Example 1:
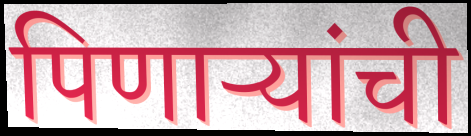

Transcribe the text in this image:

पिणाऱ्यांची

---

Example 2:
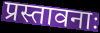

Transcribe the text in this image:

प्रस्तावनाः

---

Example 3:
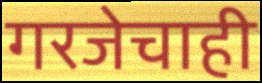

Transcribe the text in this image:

गरजेचाही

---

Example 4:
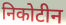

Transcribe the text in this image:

निकोटीन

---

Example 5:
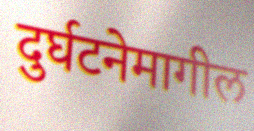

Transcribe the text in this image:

दुर्घटनेमागील